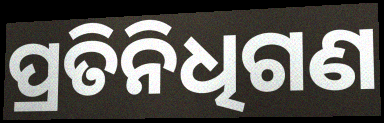
ପ୍ରତିନିଧିଗଣ